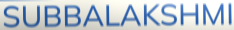
SUBBALAKSHMI